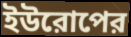
ইউরোপের